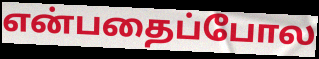
என்பதைப்போல